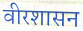
वीरशासन